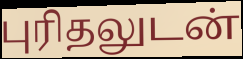
புரிதலுடன்